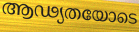
ആഢ്യതയോടെ